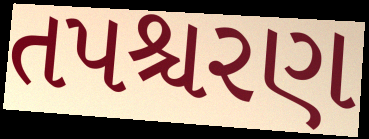
તપશ્ચરણ